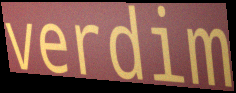
verdim